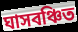
ঘাসবঞ্চিত